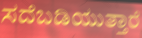
ಸದೆಬಡಿಯುತ್ತಾರೆ